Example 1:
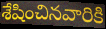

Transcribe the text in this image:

శేషించినవారికి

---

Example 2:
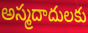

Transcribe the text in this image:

అస్మదాదులకు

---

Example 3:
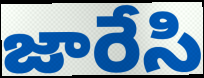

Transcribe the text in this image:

జారేసి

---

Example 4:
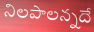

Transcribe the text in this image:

నిలపాలన్నదే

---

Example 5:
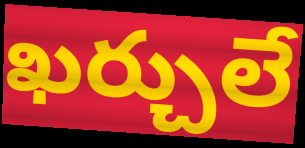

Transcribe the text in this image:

ఖర్చులే